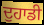
ਦੁਹਾਡੀ